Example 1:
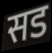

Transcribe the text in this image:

सड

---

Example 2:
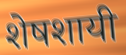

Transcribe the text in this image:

शेषशायी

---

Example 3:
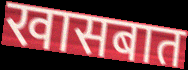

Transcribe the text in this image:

खासबात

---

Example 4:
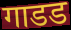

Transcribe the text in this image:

गाडड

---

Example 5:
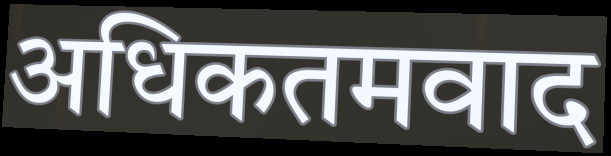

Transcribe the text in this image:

अधिकतमवाद